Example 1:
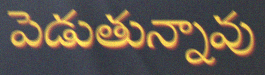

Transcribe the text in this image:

పెడుతున్నావు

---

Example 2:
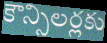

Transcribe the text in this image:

కౌన్సిలర్లకు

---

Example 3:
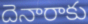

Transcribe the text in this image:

దెనారాకు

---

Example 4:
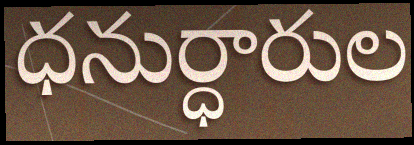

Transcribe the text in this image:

ధనుర్ధారుల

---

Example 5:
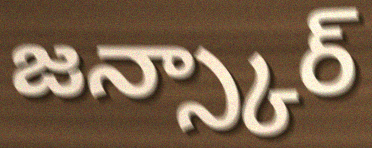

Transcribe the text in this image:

జన్స్కార్